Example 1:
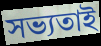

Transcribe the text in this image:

সভ্যতাই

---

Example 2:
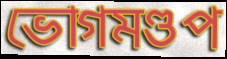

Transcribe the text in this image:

ভোগমণ্ডপ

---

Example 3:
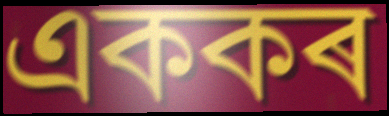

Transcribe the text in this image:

এককৰ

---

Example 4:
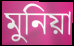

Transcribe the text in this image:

মুনিয়া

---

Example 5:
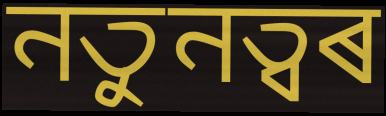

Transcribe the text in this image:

নতুনত্বৰ